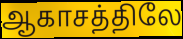
ஆகாசத்திலே